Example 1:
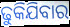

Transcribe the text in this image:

ଢୁକିଯିବାର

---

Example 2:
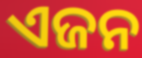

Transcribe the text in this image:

ଏଜନ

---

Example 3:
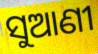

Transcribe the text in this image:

ସୁଆଣୀ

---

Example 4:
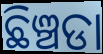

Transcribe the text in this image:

ଛିଞ୍ଚଡା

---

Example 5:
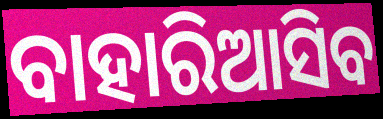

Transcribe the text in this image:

ବାହାରିଆସିବ